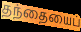
தந்தையைப்